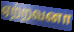
ஏற்றவனா